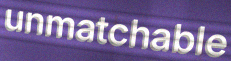
unmatchable